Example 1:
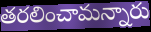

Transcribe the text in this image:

తరలించామన్నారు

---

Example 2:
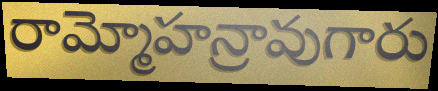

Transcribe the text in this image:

రామ్మోహన్రావుగారు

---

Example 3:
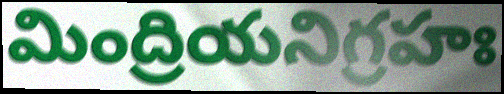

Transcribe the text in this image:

మింద్రియనిగ్రహః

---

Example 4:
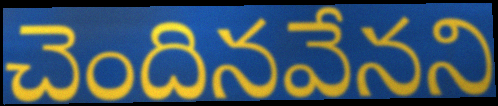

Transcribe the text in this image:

చెందినవేనని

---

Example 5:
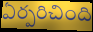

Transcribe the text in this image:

ఏర్పరిచింది